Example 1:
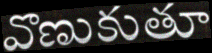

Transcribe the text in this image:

వొణుకుతూ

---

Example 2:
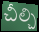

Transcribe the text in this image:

చీల్చి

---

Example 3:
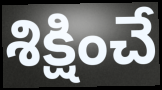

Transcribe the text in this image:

శిక్షించే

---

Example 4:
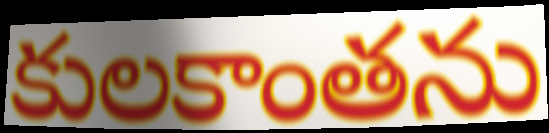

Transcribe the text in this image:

కులకాంతను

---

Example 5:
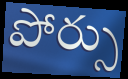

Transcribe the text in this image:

పోర్సు